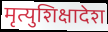
मृत्युशिक्षादेश